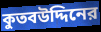
কুতবউদ্দিনের